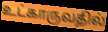
உட்காருவதில்